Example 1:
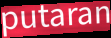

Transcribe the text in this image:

putaran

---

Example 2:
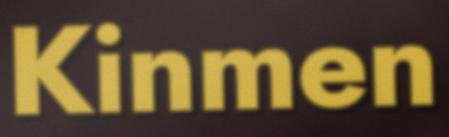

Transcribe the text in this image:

Kinmen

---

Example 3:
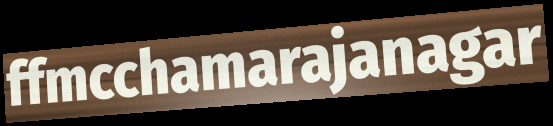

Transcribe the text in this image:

ffmcchamarajanagar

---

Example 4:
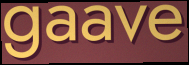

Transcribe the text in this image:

gaave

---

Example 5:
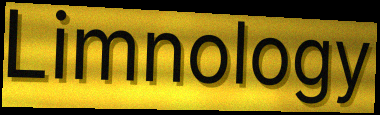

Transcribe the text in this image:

Limnology